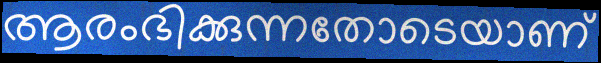
ആരംഭിക്കുന്നതോടെയാണ്